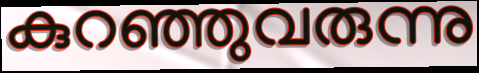
കുറഞ്ഞുവരുന്നു